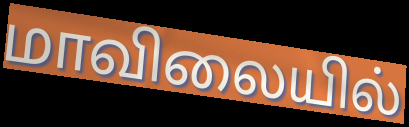
மாவிலையில்